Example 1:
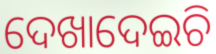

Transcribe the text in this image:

ଦେଖାଦେଇଚି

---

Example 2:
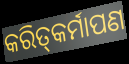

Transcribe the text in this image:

କରିତ୍‌କର୍ମାପଣ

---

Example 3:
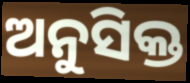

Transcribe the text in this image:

ଅନୁସିକ୍ତ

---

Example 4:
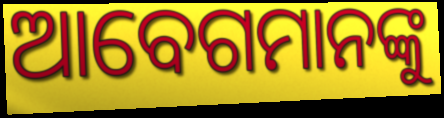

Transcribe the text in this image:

ଆବେଗମାନଙ୍କୁ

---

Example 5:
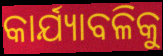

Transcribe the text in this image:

କାର୍ଯ୍ୟାବଳିକୁ